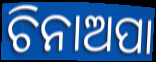
ଚିନାଅପା